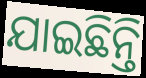
ଯାଇଛିନ୍ତି